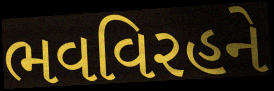
ભવવિરહને